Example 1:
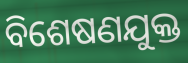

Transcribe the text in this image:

ବିଶେଷଣଯୁକ୍ତ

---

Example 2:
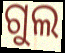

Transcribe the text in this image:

ଗୁଲ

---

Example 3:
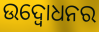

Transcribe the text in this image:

ଉଦ୍ବୋଧନର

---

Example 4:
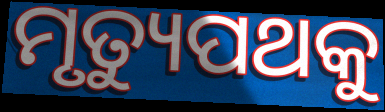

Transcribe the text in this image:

ମୃତ୍ୟୁପଥକୁ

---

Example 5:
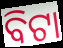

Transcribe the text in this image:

ବିଟା